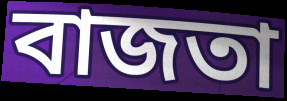
বাজতা